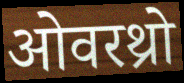
ओवरथ्रो